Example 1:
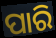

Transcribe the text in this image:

ପାରି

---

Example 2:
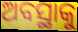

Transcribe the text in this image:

ଅବସ୍ଥାକୁ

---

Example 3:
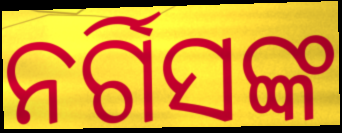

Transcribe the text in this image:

ନର୍ଗିସଙ୍କ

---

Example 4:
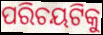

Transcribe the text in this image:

ପରିଚୟଟିକୁ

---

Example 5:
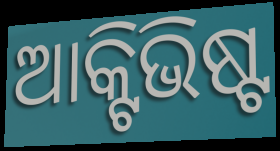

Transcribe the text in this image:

ଆକ୍ଟିଭିଷ୍ଟ